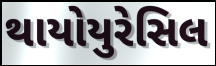
થાયોયુરેસિલ